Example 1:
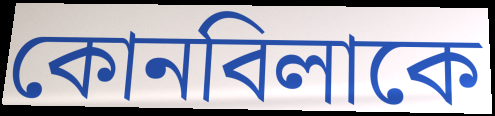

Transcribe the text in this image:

কোনবিলাকে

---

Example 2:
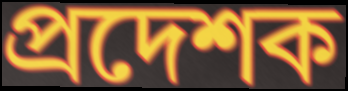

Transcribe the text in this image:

প্ৰদেশক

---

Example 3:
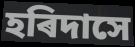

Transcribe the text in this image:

হৰিদাসে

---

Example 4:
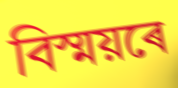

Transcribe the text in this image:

বিস্ময়ৰে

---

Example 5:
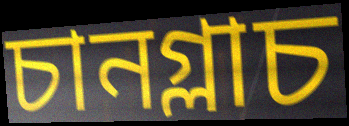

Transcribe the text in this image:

চানগ্লাচ